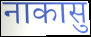
नाकासु